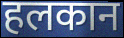
हलकान